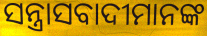
ସନ୍ତ୍ରାସବାଦୀମାନଙ୍କ